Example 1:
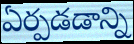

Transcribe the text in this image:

ఏర్పడడాన్ని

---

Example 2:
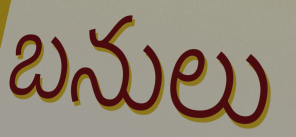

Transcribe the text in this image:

బనులు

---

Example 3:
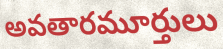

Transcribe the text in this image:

అవతారమూర్తులు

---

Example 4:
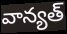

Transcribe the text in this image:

వాన్యత్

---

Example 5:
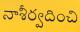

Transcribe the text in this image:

నాశీర్వదించి